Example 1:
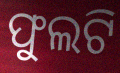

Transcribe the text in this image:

ଫୁଲଟି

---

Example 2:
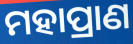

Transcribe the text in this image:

ମହାପ୍ରାଣ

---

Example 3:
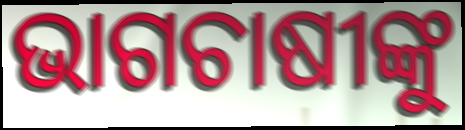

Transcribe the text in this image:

ଭାଗଚାଷୀଙ୍କୁ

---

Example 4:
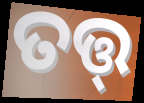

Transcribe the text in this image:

ତତ୍ତ୍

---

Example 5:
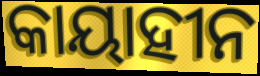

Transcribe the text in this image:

କାୟାହୀନ